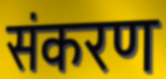
संकरण